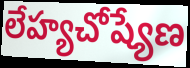
లేహ్యచోష్యేణ